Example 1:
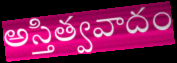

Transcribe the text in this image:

అస్తిత్వవాదం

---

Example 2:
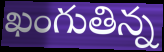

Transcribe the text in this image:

ఖంగుతిన్న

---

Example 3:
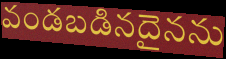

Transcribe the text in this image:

వండబడినదైనను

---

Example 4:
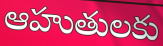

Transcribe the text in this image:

ఆహుతులకు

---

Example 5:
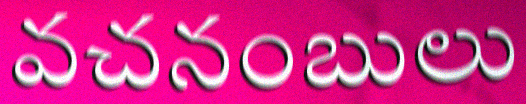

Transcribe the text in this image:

వచనంబులు